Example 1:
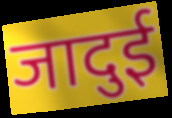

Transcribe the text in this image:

जादुई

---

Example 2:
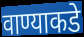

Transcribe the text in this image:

वाण्याकडे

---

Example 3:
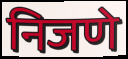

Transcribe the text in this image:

निजणे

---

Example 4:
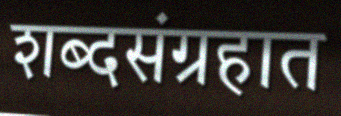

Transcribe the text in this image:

शब्दसंग्रहात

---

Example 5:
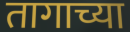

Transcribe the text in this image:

तागाच्या